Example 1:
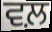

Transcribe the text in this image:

ਵਲ਼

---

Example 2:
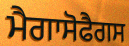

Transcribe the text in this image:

ਮੈਗਾਸੋਫੈਗਸ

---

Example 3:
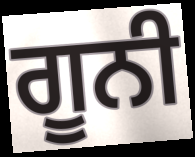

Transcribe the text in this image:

ਗੂਨੀ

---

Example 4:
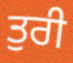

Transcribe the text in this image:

ਤੁਰੀ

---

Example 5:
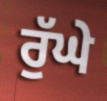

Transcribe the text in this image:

ਰੁੱਘੇ